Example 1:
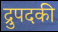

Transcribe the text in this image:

द्रुपदकी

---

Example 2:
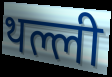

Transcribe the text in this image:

थल्ली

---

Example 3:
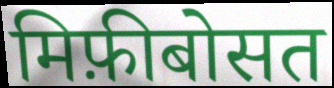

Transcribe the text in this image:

मिफ़ीबोसत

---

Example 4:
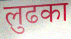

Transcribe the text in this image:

लुढका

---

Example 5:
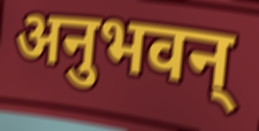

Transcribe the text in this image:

अनुभवन्